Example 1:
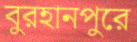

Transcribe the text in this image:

বুরহানপুরে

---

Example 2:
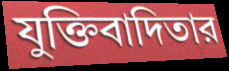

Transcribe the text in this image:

যুক্তিবাদিতার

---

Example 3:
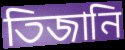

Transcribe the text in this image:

তিজানি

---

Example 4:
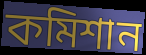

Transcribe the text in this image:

কমিশান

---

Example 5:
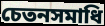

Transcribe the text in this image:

চেতনসমাধি